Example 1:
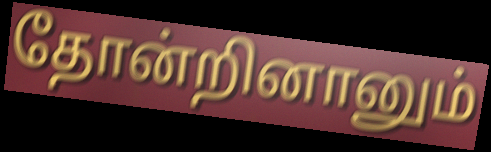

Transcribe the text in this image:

தோன்றினானும்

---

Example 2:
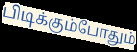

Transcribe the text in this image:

பிடிக்கும்போதும்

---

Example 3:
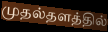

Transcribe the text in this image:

முதல்தளத்தில்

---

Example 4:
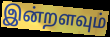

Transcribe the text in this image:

இன்றளவும்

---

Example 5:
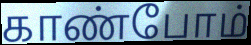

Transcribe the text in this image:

காண்போம்